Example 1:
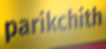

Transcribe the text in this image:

parikchith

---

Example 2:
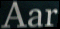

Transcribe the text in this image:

Aar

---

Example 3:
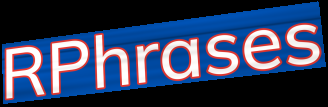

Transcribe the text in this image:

RPhrases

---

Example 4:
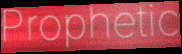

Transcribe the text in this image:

Prophetic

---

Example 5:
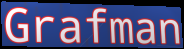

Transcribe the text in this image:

Grafman